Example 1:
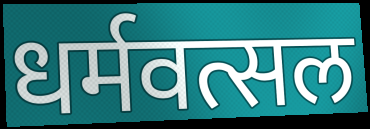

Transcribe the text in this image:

धर्मवत्सल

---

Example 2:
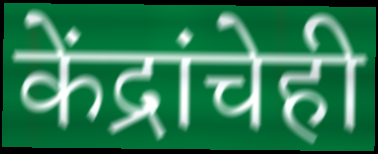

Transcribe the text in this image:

केंद्रांचेही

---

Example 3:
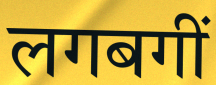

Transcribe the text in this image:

लगबगीं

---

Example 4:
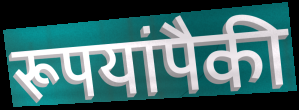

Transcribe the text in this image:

रूपयांपैकी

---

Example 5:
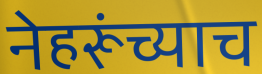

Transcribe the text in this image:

नेहरूंच्याच